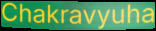
Chakravyuha